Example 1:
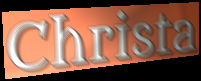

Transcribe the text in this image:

Christa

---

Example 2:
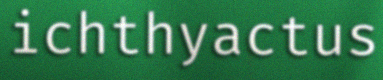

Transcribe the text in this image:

ichthyactus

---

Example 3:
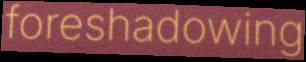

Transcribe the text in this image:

foreshadowing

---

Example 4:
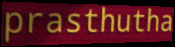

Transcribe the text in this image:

prasthutha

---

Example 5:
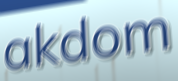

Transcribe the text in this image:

akdom